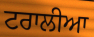
ਟਰਾਲੀਆ